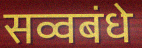
सव्वबंधे